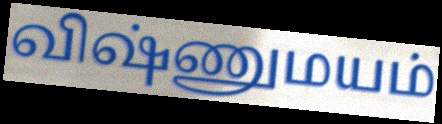
விஷ்ணுமயம்